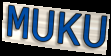
MUKU